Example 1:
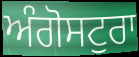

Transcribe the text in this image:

ਅੰਗੋਸਟੁਰਾ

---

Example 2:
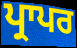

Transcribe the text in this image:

ਪ੍ਰਾਪਰ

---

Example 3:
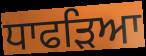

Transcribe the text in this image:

ਧਾਫੜਿਆ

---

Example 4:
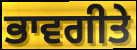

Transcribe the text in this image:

ਭਾਵਗੀਤੇ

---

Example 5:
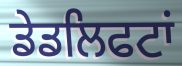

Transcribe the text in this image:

ਡੇਡਲਿਫਟਾਂ